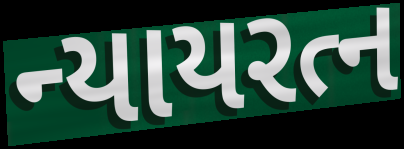
ન્યાયરત્ન